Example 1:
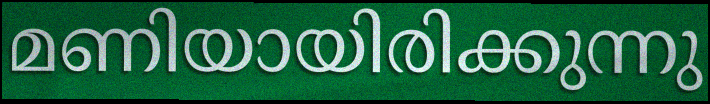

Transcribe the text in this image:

മണിയായിരിക്കുന്നു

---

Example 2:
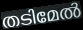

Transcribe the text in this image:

തടിമേൽ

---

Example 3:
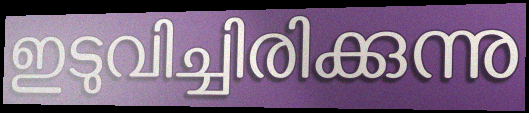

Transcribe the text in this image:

ഇടുവിച്ചിരിക്കുന്നു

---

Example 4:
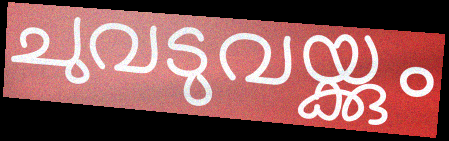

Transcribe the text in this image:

ചുവടുവയ്ക്കും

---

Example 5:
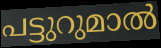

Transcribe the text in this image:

പട്ടുറുമാൽ